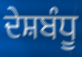
ਦੇਸ਼ਬੰਧੂ